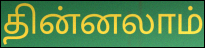
தின்னலாம்